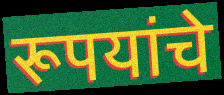
रूपयांचे